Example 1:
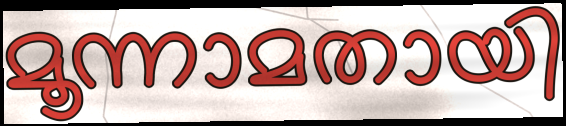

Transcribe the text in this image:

മൂന്നാമതായി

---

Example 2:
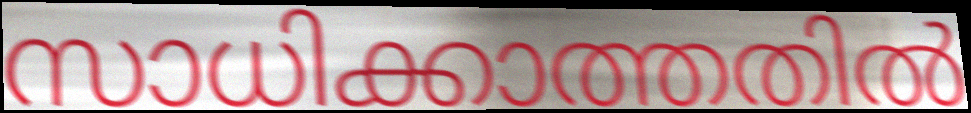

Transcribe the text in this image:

സാധിക്കാത്തതിൽ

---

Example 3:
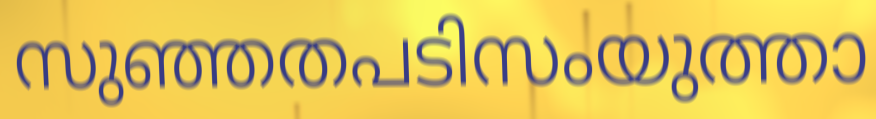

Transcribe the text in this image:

സുഞ്ഞതപടിസംയുത്താ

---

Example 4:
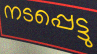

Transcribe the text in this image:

നടപ്പെട്ടു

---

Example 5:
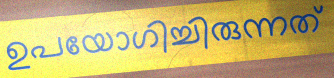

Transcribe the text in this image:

ഉപയോഗിച്ചിരുന്നത്